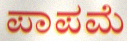
ಪಾಪಮೆ